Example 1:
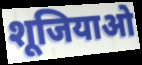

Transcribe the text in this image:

शूजियाओ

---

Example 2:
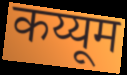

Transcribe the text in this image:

कय्यूम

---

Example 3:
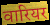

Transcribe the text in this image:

वारियर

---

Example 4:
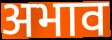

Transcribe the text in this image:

अभाव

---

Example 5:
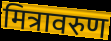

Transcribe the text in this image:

मित्रावरुण